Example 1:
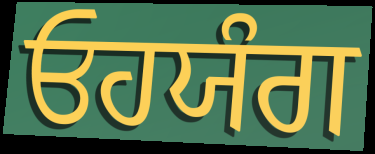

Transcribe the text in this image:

ਓਹਯੰਗ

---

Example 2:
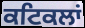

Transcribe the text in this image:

ਕਟਿਕਲਾਂ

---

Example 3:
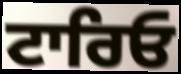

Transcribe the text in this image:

ਟਾਰਿਓ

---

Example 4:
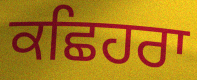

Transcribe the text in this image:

ਕਛਿਹਰਾ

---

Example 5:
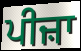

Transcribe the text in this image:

ਪੀਜ਼ਾ